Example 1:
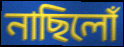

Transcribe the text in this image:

নাছিলোঁ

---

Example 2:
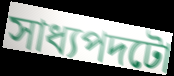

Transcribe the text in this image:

সাধ্যপদটো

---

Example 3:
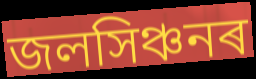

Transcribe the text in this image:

জলসিঞ্চনৰ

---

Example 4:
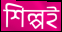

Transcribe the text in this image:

শিল্পই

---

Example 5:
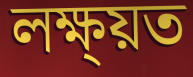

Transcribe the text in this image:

লক্ষ্য়ত